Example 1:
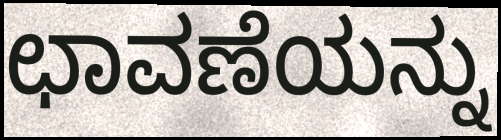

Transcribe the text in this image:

ಛಾವಣೆಯನ್ನು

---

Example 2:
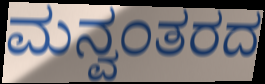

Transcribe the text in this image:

ಮನ್ವಂತರದ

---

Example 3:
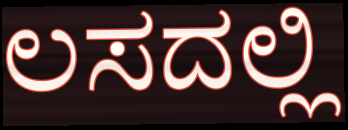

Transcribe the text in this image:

ಲಸದಲ್ಲಿ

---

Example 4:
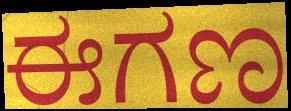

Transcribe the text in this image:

ಈಗಣ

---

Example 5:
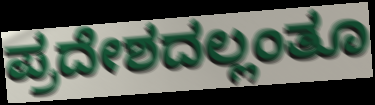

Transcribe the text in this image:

ಪ್ರದೇಶದಲ್ಲಂತೂ